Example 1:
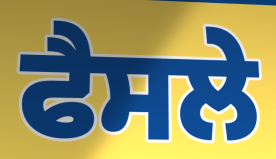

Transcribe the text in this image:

ਫੈਸਲੇ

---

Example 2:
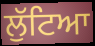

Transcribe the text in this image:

ਲੁੱਟਿਆ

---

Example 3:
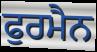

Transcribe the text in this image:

ਫੁਰਮੈਨ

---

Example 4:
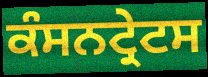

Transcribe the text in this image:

ਕੰਸਨਟ੍ਰੇਟਸ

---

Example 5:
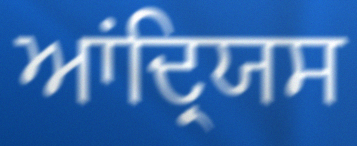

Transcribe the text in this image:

ਆਂਦ੍ਰਿਯਸ